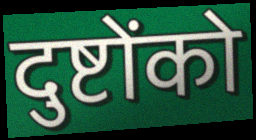
दुष्टोंको